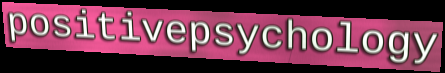
positivepsychology